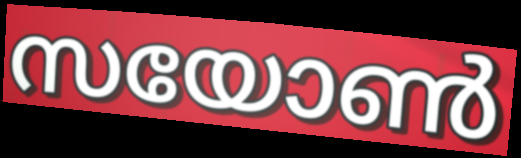
സയോൺ